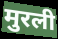
मुरली